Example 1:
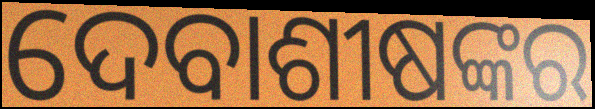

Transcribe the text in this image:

ଦେବାଶୀଷଙ୍କର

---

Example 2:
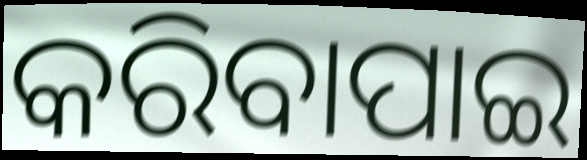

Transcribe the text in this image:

କରିବାପାଇ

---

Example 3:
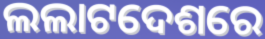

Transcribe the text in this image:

ଲଲାଟଦେଶରେ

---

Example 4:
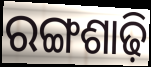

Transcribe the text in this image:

ରଙ୍ଗଶାଢ଼ି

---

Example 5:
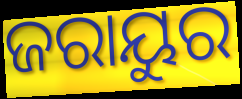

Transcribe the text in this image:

ଜରାୟୁର